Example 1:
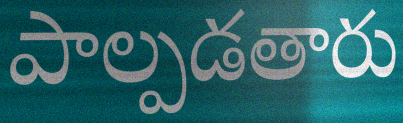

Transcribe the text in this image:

పాల్పడతారు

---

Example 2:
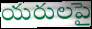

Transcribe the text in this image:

యరులపై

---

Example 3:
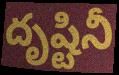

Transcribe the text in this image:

దృష్టినీ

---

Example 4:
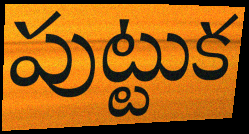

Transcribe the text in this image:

పుట్టుక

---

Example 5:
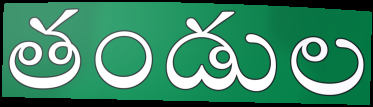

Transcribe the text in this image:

తండుల